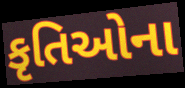
કૃતિઓના